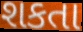
શકતા